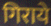
गिराये